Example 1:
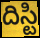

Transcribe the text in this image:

దిస్టి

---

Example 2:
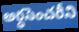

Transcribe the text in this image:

అర్ధసెంచరీని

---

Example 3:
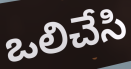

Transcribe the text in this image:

ఒలిచేసి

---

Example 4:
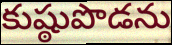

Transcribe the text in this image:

కుష్ఠుపొడను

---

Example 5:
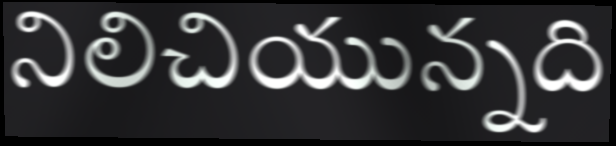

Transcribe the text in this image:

నిలిచియున్నది